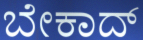
ಬೇಕಾದ್